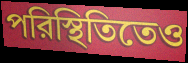
পরিস্থিতিতেও